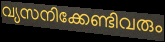
വ്യസനിക്കേണ്ടിവരും